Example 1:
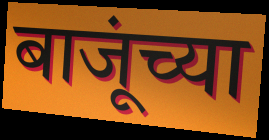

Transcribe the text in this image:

बाजूंच्या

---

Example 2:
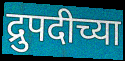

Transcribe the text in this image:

द्रुपदीच्या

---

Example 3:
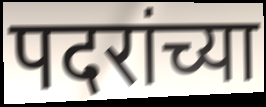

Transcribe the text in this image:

पदरांच्या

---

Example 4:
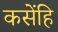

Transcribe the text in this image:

कसेंहि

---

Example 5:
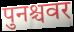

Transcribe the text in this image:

पुनश्चवर